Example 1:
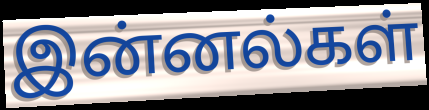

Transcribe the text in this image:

இன்னல்கள்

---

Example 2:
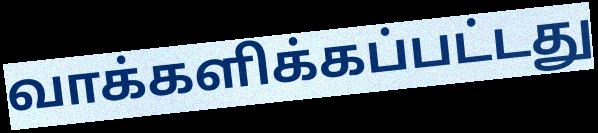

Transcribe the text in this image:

வாக்களிக்கப்பட்டது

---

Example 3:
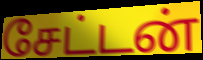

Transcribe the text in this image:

சேட்டன்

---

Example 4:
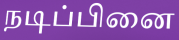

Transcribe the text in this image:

நடிப்பினை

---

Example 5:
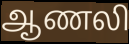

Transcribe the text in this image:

ஆணலி